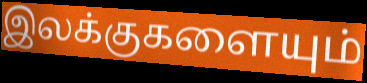
இலக்குகளையும்